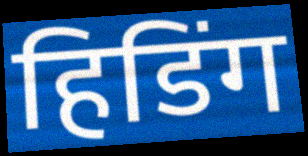
हिडिंग